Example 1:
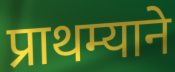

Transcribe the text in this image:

प्राथम्याने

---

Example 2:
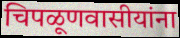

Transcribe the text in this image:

चिपळूणवासीयांना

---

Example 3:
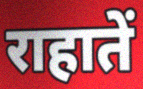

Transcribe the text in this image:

राहातें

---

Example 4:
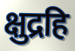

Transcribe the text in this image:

क्षुद्रहि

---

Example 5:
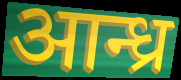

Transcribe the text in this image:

आन्ध्र